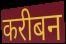
करीबन